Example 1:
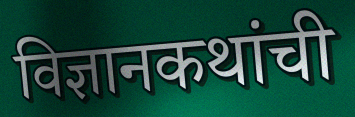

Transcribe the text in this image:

विज्ञानकथांची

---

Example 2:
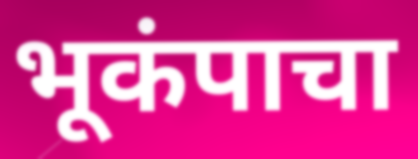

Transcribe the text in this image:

भूकंपाचा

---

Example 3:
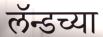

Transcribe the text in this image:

लॅन्डच्या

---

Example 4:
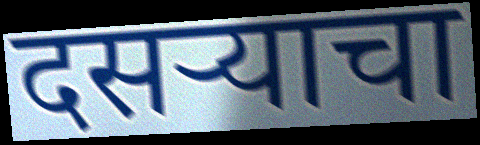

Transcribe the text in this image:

दसऱ्याचा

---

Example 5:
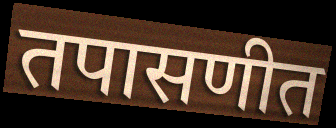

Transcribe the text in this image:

तपासणीत